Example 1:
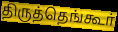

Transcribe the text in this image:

திருத்தெங்கூர்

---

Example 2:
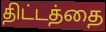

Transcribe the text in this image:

திட்டத்தை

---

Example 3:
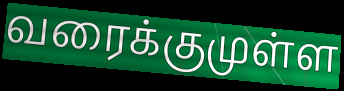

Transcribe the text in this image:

வரைக்குமுள்ள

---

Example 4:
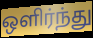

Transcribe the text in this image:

ஒளிர்ந்து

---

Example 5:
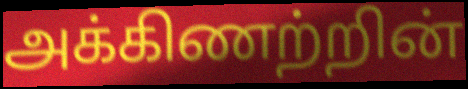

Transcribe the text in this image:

அக்கிணற்றின்